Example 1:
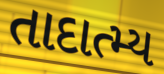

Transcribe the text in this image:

તાદાત્મ્ય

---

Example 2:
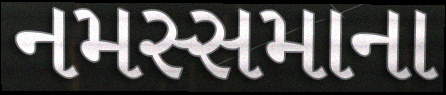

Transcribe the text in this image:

નમસ્સમાના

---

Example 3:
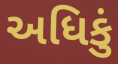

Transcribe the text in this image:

અધિકું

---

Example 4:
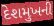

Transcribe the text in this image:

દેશમુખની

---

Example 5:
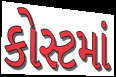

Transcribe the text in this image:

કોસ્ટમાં